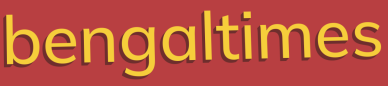
bengaltimes